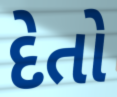
દેતો